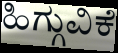
ಹಿಗ್ಗುವಿಕೆ